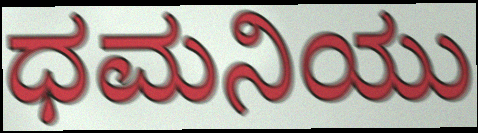
ಧಮನಿಯು